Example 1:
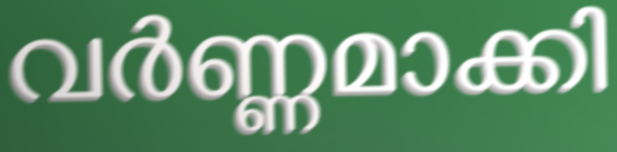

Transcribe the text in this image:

വർണ്ണമാക്കി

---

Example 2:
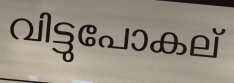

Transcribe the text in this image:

വിട്ടുപോകല്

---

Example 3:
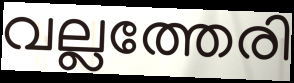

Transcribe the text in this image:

വല്ലത്തേരി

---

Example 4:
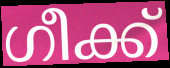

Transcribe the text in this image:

ഗീക്ക്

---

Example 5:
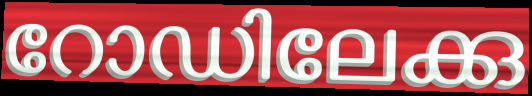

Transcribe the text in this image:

റോഡിലേക്കു